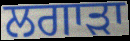
ਲਗਾੜਾ